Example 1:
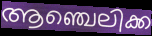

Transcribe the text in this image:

ആഞ്ചെലിക്ക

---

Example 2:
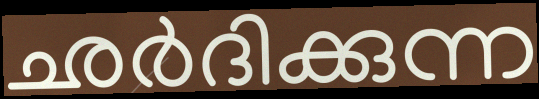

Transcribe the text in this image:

ഛർദിക്കുന്ന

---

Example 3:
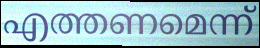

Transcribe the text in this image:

എത്തണമെന്ന്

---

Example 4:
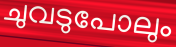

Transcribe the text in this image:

ചുവടുപോലും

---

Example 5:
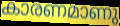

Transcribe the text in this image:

കാരണമാണു